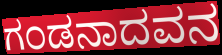
ಗಂಡನಾದವನ